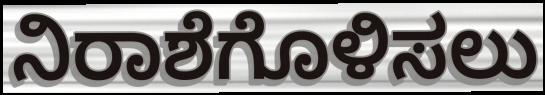
ನಿರಾಶೆಗೊಳಿಸಲು